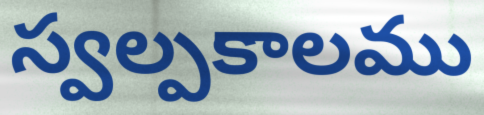
స్వల్పకాలము